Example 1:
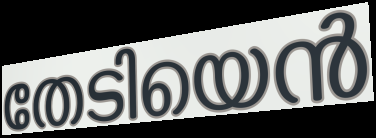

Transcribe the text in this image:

തേടിയെൻ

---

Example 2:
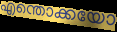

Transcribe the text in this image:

എന്തൊക്കയോ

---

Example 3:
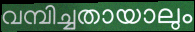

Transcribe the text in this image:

വമ്പിച്ചതായാലും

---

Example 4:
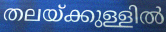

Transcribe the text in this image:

തലയ്ക്കുള്ളിൽ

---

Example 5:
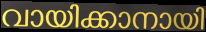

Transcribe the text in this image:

വായിക്കാനായി